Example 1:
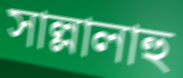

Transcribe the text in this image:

সাল্লালাহু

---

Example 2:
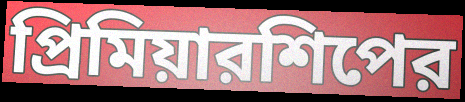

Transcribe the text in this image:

প্রিমিয়ারশিপের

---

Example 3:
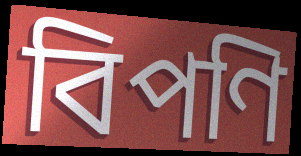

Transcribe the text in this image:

বিপণি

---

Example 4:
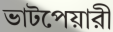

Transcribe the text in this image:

ভাটপেয়ারী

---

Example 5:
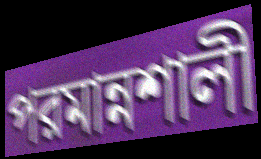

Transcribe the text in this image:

পরমান্নশালী